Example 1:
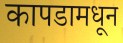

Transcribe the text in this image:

कापडामधून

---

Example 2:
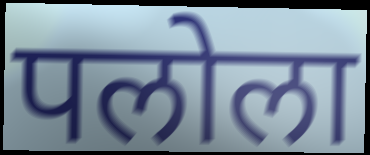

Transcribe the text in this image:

पलोला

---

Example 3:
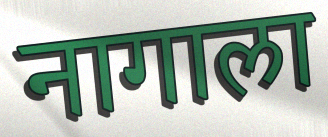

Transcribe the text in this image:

नागाला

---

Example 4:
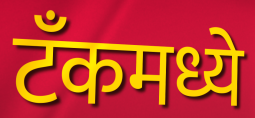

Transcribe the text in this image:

टॅंकमध्ये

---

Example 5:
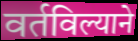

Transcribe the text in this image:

वर्तविल्याने